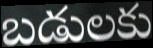
బడులకు